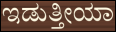
ಇಡುತ್ತೀಯಾ